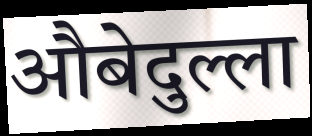
औबेदुल्ला